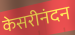
केसरीनंदन